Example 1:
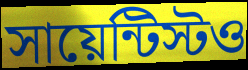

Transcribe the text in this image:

সায়েন্টিস্টও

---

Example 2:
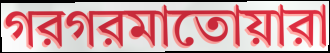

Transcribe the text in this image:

গরগরমাতোয়ারা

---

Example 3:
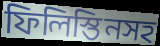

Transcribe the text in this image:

ফিলিস্তিনসহ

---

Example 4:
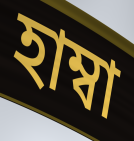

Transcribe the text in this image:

হাম্বা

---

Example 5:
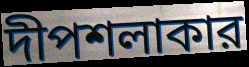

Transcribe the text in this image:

দীপশলাকার